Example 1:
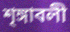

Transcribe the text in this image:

শৃঙ্গাবলী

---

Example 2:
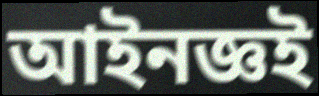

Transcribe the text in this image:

আইনজ্ঞই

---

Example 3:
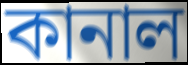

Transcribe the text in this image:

কানাল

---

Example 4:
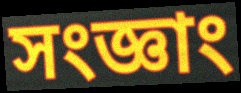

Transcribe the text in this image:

সংজ্ঞাং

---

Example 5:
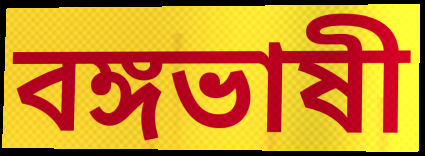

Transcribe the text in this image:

বঙ্গভাষী